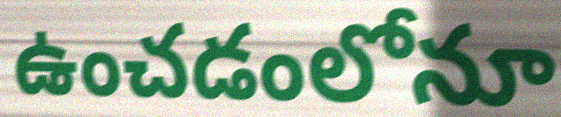
ఉంచడంలోనూ